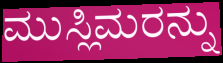
ಮುಸ್ಲಿಮರನ್ನು